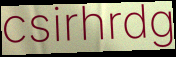
csirhrdg